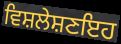
ਵਿਸ਼ਲੇਸ਼ਣਇਹ